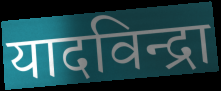
यादविन्द्रा